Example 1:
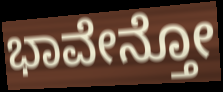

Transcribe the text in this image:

ಭಾವೇನ್ತೋ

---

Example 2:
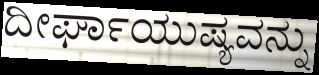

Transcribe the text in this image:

ದೀರ್ಘಾಯುಷ್ಯವನ್ನು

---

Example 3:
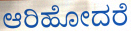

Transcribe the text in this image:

ಆರಿಹೋದರೆ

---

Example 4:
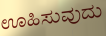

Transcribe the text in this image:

ಊಹಿಸುವುದು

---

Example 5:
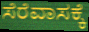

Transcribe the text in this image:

ಸೆರೆವಾಸಕ್ಕೆ